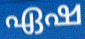
ഏഷ